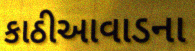
કાઠીઆવાડના